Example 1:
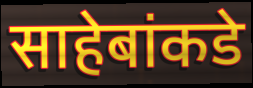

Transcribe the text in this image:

साहेबांकडे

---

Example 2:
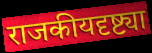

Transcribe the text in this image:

राजकीयदृष्ट्या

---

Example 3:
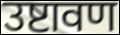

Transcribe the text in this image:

उष्टावण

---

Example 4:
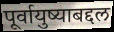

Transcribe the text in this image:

पूर्वायुष्याबद्दल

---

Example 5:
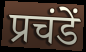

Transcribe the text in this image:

प्रचंडें